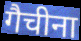
गैचीना